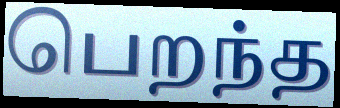
பெறந்த